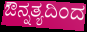
ಔನ್ನತ್ಯದಿಂದ